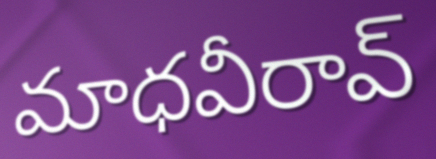
మాధవీరావ్